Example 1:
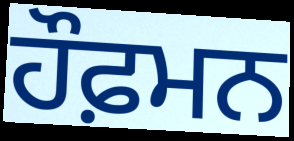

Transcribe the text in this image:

ਹੌਫ਼ਮਨ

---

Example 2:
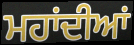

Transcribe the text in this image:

ਮਹਾਂਦੀਆਂ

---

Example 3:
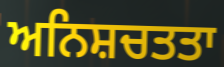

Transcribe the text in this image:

ਅਨਿਸ਼ਚਤਤਾ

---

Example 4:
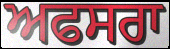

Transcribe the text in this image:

ਅਫਸਰਾ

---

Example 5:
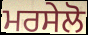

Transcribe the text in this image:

ਮਰਸੇਲੋ